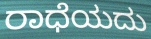
ರಾಧೆಯದು